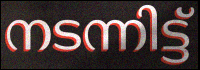
നടന്നിട്ട്